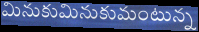
మినుకుమినుకుమంటున్న